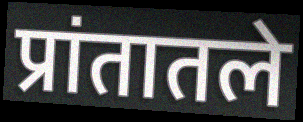
प्रांतातले